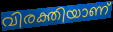
വിരക്തിയാണ്